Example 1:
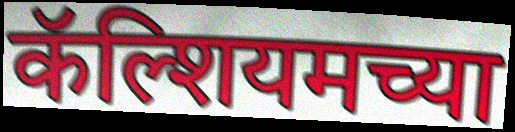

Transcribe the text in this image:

कॅल्शियमच्या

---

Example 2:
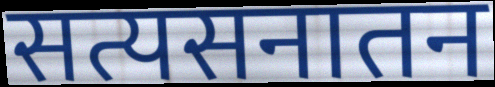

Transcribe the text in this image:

सत्यसनातन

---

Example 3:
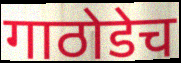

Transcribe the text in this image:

गाठोडेच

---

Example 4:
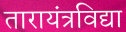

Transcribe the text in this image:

तारायंत्रविद्या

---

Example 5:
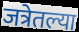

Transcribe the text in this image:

जत्रेतल्या